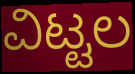
ವಿಟ್ಟಲ